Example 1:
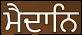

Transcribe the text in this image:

ਮੈਦਾਨਿ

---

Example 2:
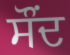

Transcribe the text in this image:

ਸੌਂਦ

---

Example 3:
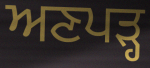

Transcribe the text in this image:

ਅਣਪੜ੍ਹ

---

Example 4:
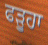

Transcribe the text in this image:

ਫੜੂਹਾ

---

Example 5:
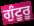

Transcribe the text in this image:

ਗੁੰਟੂਰੂ